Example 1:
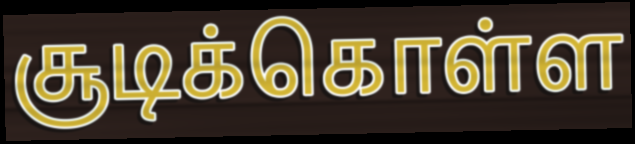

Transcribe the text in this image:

சூடிக்கொள்ள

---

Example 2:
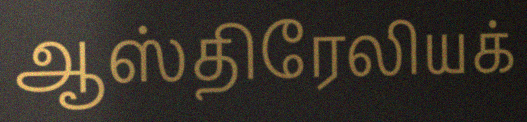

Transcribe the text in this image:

ஆஸ்திரேலியக்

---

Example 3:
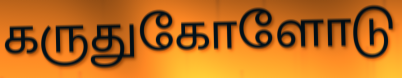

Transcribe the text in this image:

கருதுகோளோடு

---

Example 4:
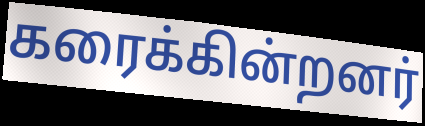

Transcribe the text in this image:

கரைக்கின்றனர்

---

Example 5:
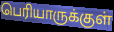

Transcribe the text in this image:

பெரியாருக்குள்